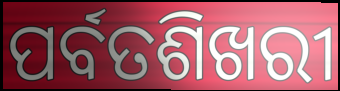
ପର୍ବତଶିଖରୀ